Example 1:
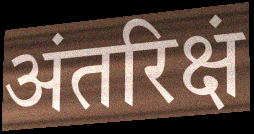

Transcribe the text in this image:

अंतरिक्षं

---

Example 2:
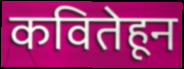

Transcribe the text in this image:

कवितेहून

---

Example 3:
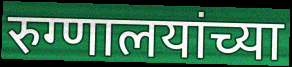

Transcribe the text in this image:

रुग्णालयांच्या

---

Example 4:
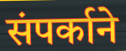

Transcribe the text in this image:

संपर्काने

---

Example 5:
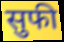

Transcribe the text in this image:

सुफी